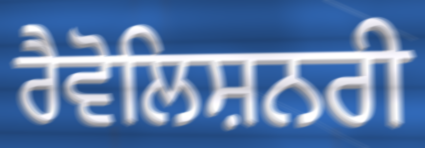
ਰੈਵੋਲਿਸ਼ਨਰੀ